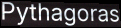
Pythagoras